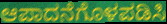
ಆಪಾದನೆಗೊಳಪಡಿಸಿ